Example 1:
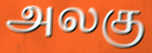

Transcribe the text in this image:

அலகு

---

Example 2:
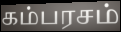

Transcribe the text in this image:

கம்பரசம்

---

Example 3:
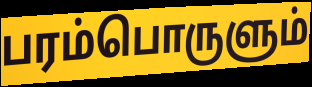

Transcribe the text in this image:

பரம்பொருளும்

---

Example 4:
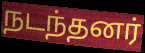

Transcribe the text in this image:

நடந்தனர்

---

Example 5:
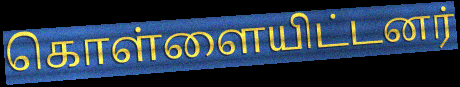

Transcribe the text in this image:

கொள்ளையிட்டனர்